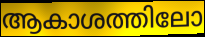
ആകാശത്തിലോ